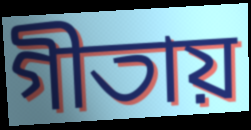
গীতায়